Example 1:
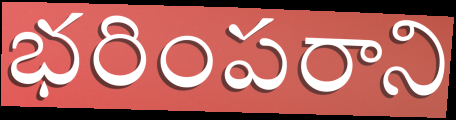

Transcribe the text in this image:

భరింపరాని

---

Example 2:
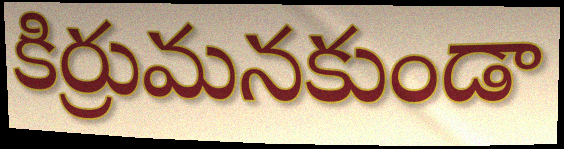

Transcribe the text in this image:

కిర్రుమనకుండా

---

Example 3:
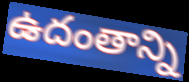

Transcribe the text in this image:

ఉదంతాన్ని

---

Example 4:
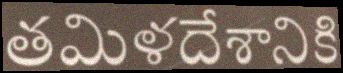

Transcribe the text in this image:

తమిళదేశానికి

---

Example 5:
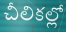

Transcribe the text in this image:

చీలికల్లో